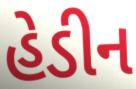
હેડીન